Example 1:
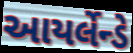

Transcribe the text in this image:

આયર્લેન્ડે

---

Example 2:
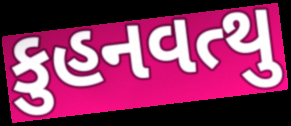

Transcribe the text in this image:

કુહનવત્થુ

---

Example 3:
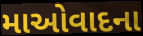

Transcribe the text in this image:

માઓવાદના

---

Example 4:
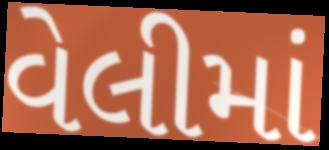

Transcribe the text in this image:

વેલીમાં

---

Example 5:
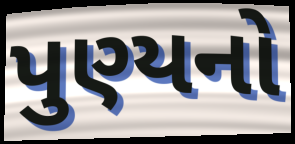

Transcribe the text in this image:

પુણ્યનો